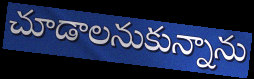
చూడాలనుకున్నాను